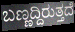
ಬಣ್ಣದ್ದಿರುತ್ತದೆ